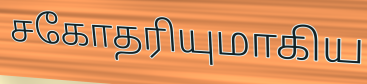
சகோதரியுமாகிய